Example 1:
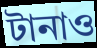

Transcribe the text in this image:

টানাও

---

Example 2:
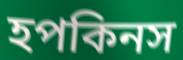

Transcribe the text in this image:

হপকিনস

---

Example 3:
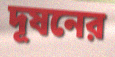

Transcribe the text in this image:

দূষনের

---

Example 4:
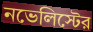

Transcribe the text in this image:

নভেলিস্টের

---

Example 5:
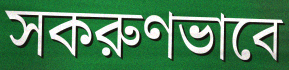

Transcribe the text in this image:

সকরুণভাবে